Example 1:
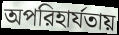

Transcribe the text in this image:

অপরিহার্যতায়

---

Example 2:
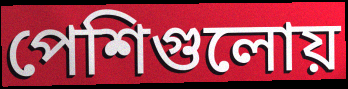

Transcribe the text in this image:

পেশিগুলোয়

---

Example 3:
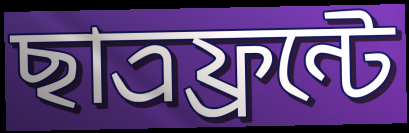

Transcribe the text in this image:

ছাত্রফ্রন্টে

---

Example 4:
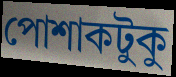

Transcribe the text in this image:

পোশাকটুকু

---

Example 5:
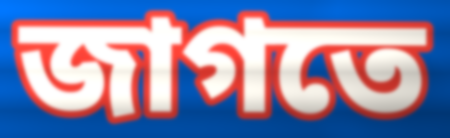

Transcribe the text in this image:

জাগতে